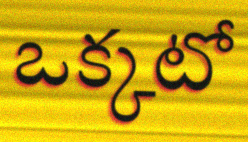
ఒక్కటో